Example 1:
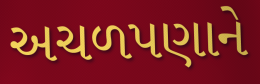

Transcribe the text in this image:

અચળપણાને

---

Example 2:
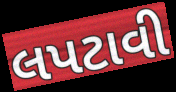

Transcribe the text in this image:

લપટાવી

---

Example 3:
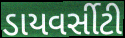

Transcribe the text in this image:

ડાયવર્સીટી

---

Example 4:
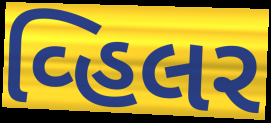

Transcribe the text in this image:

વ્હિલર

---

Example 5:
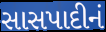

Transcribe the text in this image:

સાસપાદીનં